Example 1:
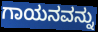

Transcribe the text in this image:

ಗಾಯನವನ್ನು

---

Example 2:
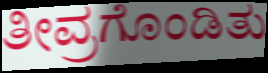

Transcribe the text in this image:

ತೀವ್ರಗೊಂಡಿತು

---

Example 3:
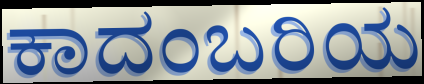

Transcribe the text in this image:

ಕಾದಂಬರಿಯ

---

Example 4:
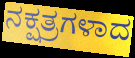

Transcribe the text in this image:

ನಕ್ಷತ್ರಗಳಾದ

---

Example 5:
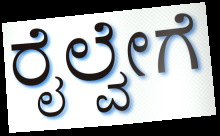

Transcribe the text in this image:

ರೈಲ್ವೇಗೆ